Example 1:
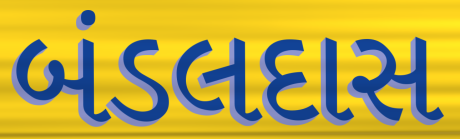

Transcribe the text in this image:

બંડલદાસ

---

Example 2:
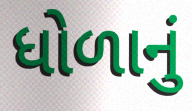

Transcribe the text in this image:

ધોળાનું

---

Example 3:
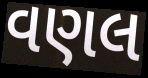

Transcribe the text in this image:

વણલ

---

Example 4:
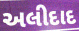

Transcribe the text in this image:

અલીદાદ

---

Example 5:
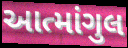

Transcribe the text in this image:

આત્માંગુલ